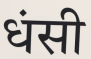
धंसी